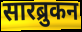
सारब्रुकन